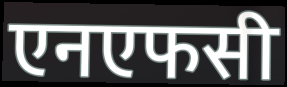
एनएफसी